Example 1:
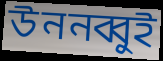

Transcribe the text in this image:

উননব্বুই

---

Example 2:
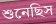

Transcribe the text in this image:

শুনেছিস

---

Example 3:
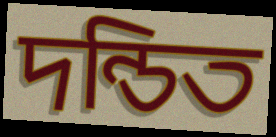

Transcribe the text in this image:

দন্ডিত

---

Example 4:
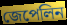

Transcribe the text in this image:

জেপেলিন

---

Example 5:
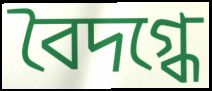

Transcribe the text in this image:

বৈদগ্ধে